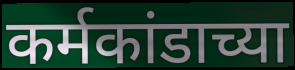
कर्मकांडाच्या